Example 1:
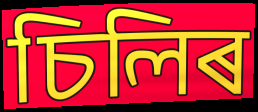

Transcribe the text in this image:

চিলিৰ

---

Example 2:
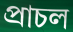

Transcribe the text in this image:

প্ৰাচল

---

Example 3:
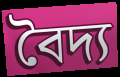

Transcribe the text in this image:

বৈদ্য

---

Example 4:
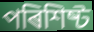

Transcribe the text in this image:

পৰিশিষ্ট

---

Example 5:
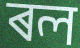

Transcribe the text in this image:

ৰল